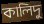
কালিদু